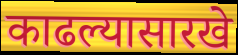
काढल्यासारखे